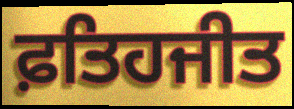
ਫ਼ਤਿਹਜੀਤ